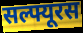
सल्फ्यूरस